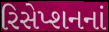
રિસેપ્શનનાં